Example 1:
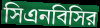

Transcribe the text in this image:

সিএনবিসির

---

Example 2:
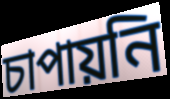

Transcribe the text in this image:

চাপায়নি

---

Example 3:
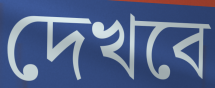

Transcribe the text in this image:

দেখবে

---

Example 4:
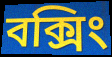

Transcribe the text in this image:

বক্সিং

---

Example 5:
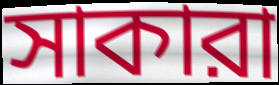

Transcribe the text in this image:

সাকারা